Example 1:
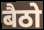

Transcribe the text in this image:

बैठो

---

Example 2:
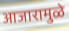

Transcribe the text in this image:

आजारामुळे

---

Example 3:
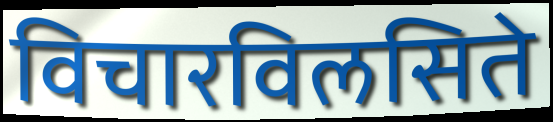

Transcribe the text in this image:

विचारविलसिते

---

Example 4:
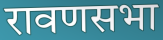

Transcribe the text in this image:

रावणसभा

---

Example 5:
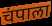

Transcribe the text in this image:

चंपाला